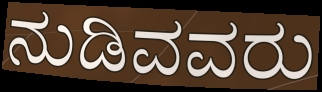
ನುಡಿವವರು